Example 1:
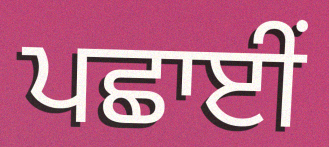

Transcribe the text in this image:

ਪਛਾਈਂ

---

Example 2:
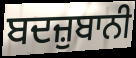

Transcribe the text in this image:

ਬਦਜ਼ੁਬਾਨੀ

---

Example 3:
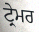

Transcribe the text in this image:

ਟ੍ਰੇਮਰ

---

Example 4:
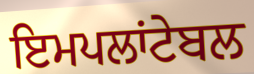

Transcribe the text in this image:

ਇਮਪਲਾਂਟੇਬਲ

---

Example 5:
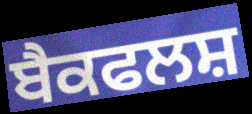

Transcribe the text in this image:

ਬੈਕਫਲਸ਼